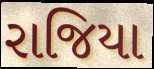
રાજિયા